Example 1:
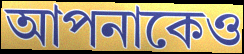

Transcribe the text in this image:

আপনাকেও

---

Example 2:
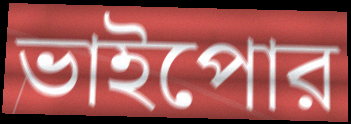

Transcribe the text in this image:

ভাইপোর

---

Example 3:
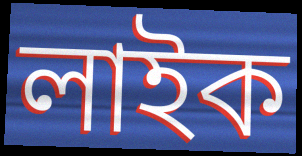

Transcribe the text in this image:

লাইক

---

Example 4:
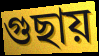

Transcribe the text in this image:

গুছায়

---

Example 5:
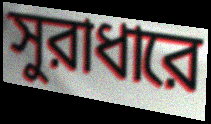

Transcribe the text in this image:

সুরাধারে